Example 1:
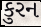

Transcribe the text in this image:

કુરન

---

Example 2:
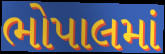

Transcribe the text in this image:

ભોપાલમાં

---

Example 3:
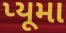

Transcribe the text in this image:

પ્યૂમા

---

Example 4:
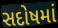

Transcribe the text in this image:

સદોષમાં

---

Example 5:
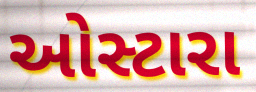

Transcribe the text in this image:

ઓસ્ટારા